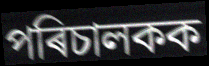
পৰিচালকক